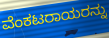
ವೆಂಕಟರಾಯರನ್ನು